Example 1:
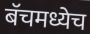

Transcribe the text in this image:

बॅचमध्येच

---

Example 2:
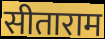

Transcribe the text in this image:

सीताराम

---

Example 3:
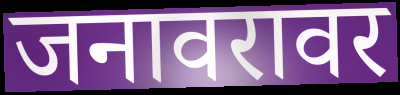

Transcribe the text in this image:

जनावरावर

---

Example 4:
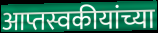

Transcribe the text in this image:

आप्तस्वकीयांच्या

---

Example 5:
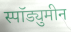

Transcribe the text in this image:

स्पॉड्युमीन